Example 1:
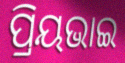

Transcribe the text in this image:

ପ୍ରିୟଭାଇ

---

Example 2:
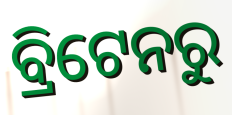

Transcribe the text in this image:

ବ୍ରିଟେନରୁ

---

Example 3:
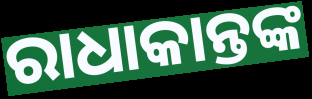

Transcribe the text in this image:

ରାଧାକାନ୍ତଙ୍କ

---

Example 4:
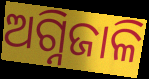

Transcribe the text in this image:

ଅଗ୍ନିଜାଳି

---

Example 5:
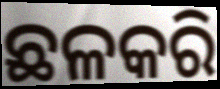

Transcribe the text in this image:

ଛଳକରି